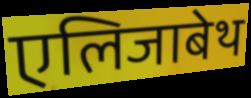
एलिजाबेथ